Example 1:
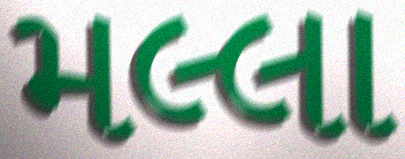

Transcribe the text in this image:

મલ્લા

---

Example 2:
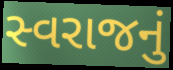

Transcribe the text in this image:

સ્વરાજનું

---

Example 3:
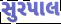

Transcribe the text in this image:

સુરપાલ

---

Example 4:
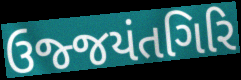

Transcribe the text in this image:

ઉજ્જયંતગિરિ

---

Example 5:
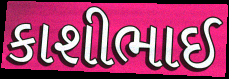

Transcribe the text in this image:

કાશીભાઈ